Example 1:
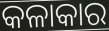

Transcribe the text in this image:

କଳାକାର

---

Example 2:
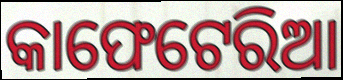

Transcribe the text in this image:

କାଫେଟେରିଆ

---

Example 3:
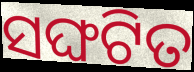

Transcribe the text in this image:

ସଙ୍ଘଟିତ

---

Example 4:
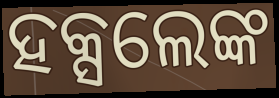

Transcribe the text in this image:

ହକ୍ସଲେଙ୍କ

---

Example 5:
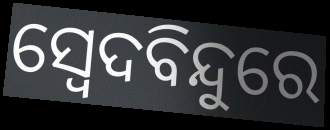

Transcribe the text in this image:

ସ୍ୱେଦବିନ୍ଦୁରେ